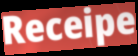
Receipe